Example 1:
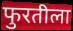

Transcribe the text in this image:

फुरतीला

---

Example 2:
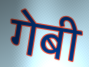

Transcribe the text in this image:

गेबी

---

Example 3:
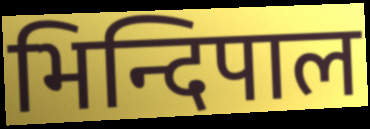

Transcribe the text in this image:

भिन्दिपाल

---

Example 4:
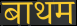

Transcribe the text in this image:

बाथम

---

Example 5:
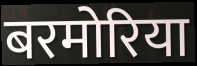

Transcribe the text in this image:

बरमोरिया